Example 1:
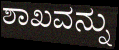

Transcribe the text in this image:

ಶಾಖವನ್ನು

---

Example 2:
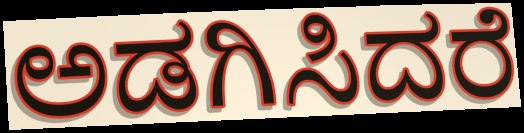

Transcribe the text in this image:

ಅಡಗಿಸಿದರೆ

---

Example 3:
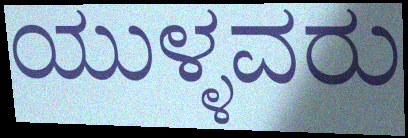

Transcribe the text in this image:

ಯುಳ್ಳವರು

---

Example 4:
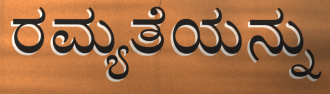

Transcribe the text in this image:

ರಮ್ಯತೆಯನ್ನು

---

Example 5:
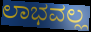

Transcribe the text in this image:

ಲಾಭವಲ್ಲ